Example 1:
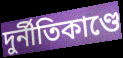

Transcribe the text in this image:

দুর্নীতিকাণ্ডে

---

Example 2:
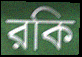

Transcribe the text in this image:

রকি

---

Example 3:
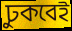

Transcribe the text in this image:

ঢুকবেই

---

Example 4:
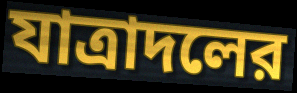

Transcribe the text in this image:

যাত্রাদলের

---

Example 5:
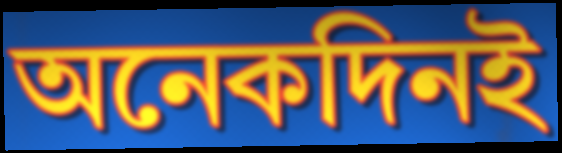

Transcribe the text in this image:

অনেকদিনই